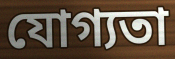
যোগ্যতা